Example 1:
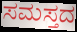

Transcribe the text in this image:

ಸಮಸ್ತದ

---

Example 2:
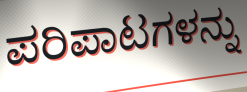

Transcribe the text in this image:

ಪರಿಪಾಟಗಳನ್ನು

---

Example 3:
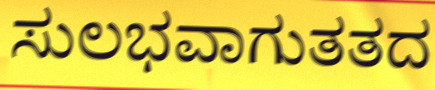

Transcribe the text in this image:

ಸುಲಭವಾಗುತತದ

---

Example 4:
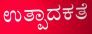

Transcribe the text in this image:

ಉತ್ಪಾದಕತೆ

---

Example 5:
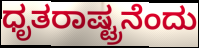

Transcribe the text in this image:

ಧೃತರಾಷ್ಟ್ರನೆಂದು